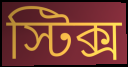
স্টিক্স